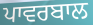
ਪਾਵਰਬਾਲ